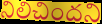
నిలిచిందని